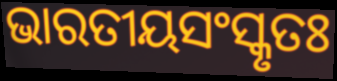
ଭାରତୀୟସଂସ୍କୃତଃ